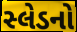
સ્લેડનો